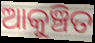
ଆକୁଞ୍ଚିତ